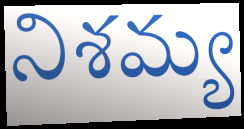
నిశమ్య